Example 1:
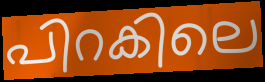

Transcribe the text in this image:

പിറകിലെ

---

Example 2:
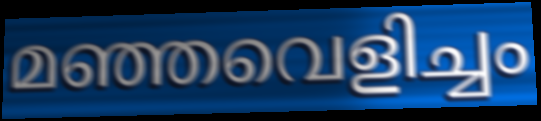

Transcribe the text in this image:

മഞ്ഞവെളിച്ചം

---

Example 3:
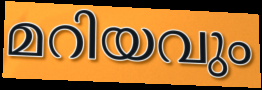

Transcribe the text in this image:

മറിയവും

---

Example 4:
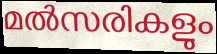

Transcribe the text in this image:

മൽസരികളും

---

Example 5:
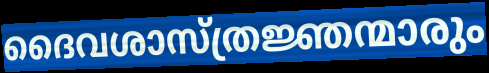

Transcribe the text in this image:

ദൈവശാസ്ത്രജ്ഞന്മാരും